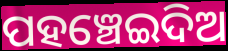
ପହଞ୍ଚେଇଦିଅ